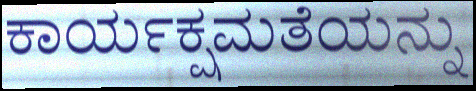
ಕಾರ್ಯಕ್ಷಮತೆಯನ್ನು